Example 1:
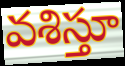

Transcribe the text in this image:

వశిస్తూ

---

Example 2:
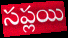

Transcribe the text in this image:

సప్లయి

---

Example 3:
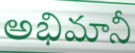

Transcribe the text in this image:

అభిమానీ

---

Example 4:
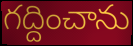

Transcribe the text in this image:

గద్దించాను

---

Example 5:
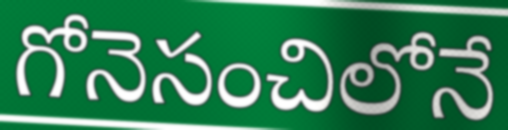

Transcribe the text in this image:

గోనెసంచిలోనే